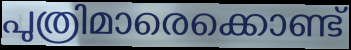
പുത്രിമാരെക്കൊണ്ട്